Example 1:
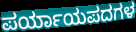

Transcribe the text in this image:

ಪರ್ಯಾಯಪದಗಳ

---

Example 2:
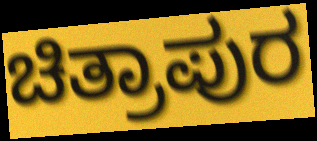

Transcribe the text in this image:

ಚಿತ್ರಾಪುರ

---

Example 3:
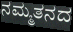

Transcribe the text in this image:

ನಮ್ಮತನದ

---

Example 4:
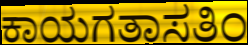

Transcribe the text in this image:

ಕಾಯಗತಾಸತಿಂ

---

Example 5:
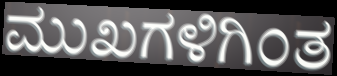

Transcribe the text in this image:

ಮುಖಗಳಿಗಿಂತ